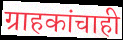
ग्राहकांचाही